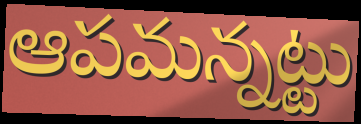
ఆపమన్నట్టు